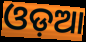
ଓଡ଼ଆ